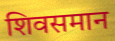
शिवसमान